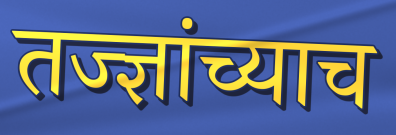
तज्ज्ञांच्याच